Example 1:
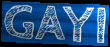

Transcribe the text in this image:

GAYI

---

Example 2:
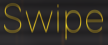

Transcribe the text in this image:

Swipe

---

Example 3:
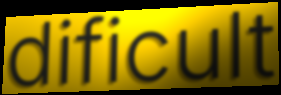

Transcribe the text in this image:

dificult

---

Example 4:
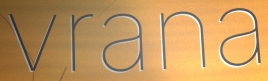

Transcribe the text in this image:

vrana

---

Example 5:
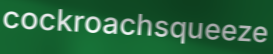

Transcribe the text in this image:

cockroachsqueeze